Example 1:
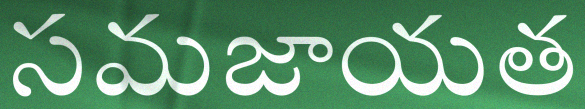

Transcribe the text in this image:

సమజాయత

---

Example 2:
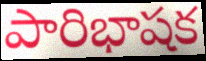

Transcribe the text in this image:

పారిభాషక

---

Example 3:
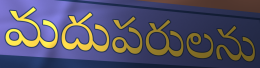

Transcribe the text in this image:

మదుపరులను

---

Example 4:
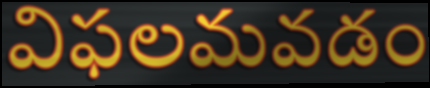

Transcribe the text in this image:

విఫలమవడం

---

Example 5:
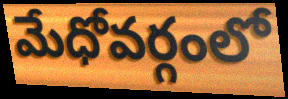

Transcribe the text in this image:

మేధోవర్గంలో